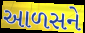
આળસને